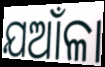
ଯଆଁଳା